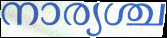
നാര്യശ്ച